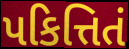
પકિત્તિતં